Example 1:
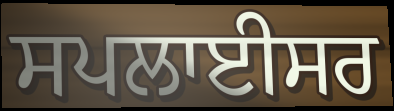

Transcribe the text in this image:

ਸਪਲਾਈਸਰ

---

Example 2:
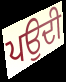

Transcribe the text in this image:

ਪਉਦੀ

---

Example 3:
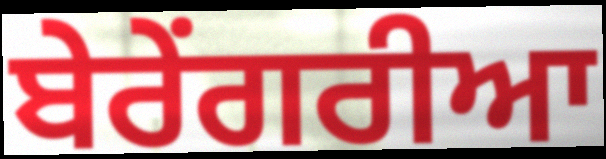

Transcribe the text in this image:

ਬੇਰੇਂਗਰੀਆ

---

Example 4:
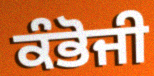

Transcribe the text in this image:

ਕੰਭੋਜੀ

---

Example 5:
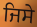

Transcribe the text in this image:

ਜਿਸੇ